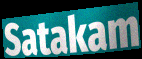
Satakam